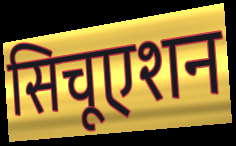
सिचूएशन